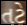
તટે